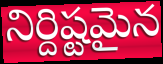
నిర్దిష్టమైన